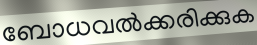
ബോധവൽക്കരിക്കുക